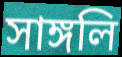
সাঙ্গলি